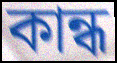
কান্ধ